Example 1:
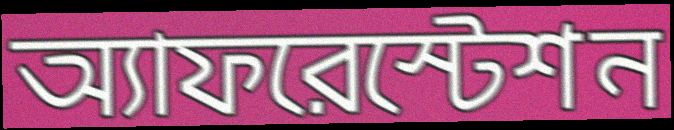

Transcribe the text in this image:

অ্যাফরেস্টেশন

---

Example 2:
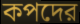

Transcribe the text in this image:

কপদের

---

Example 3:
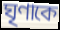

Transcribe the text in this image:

ঘৃণাকে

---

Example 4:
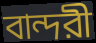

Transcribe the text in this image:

বান্দরী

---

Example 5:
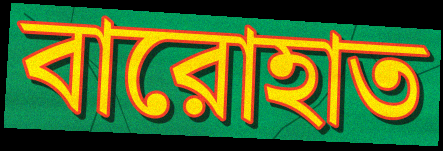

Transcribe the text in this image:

বারোহাত